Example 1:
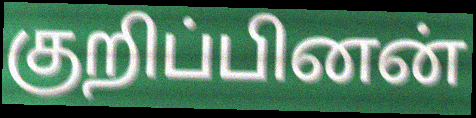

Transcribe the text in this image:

குறிப்பினன்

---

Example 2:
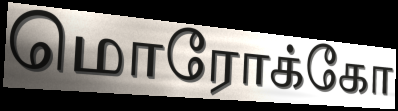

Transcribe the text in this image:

மொரோக்கோ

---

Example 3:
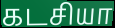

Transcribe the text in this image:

கடசியா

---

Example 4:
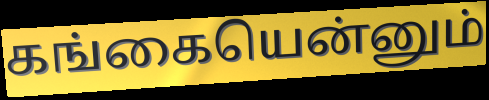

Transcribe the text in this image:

கங்கையென்னும்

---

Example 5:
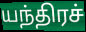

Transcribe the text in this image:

யந்திரச்